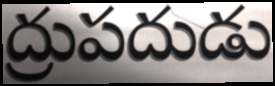
ద్రుపదుడు